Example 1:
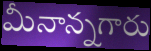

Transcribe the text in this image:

మీనాన్నగారు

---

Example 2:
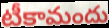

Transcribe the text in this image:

టీకామందు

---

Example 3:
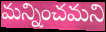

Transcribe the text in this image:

మన్నించమని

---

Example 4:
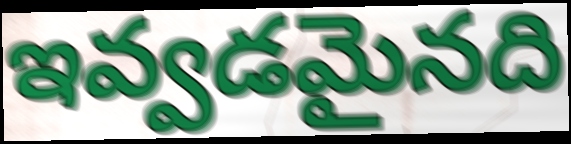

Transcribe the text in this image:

ఇవ్వడమైనది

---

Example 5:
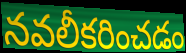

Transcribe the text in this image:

నవలీకరించడం